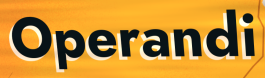
Operandi